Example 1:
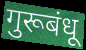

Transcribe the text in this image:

गुरूबंधू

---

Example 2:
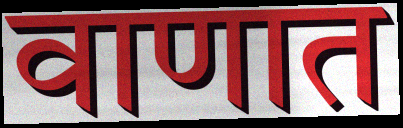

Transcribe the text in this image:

वाणात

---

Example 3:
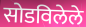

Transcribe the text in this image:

सोडविलेले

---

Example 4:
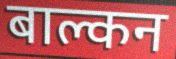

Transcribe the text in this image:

बाल्कन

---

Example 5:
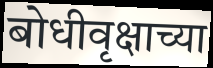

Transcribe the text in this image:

बोधीवृक्षाच्या